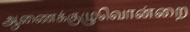
ஆணைக்குழுவொன்றை